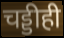
चड्डीही